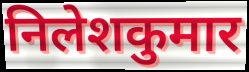
निलेशकुमार